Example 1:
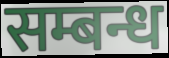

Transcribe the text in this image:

सम्बन्ध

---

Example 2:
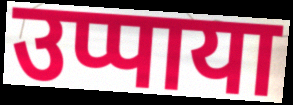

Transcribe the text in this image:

उप्पाया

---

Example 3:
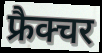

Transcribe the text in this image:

फ्रैक्चर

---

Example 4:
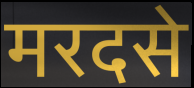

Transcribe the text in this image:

मरदसे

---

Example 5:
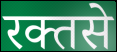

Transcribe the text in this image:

रक्तसे